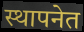
स्थापनेत